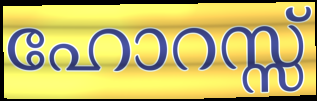
ഹോറസ്സ്